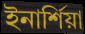
ইনার্শিয়া